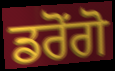
ਡਰੋਂਗੋ